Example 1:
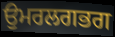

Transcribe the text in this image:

ਉੁਮਰਲਗਭਗ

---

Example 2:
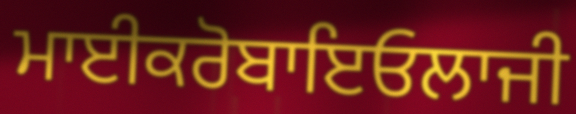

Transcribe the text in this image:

ਮਾਈਕਰੋਬਾਇਓਲਾਜੀ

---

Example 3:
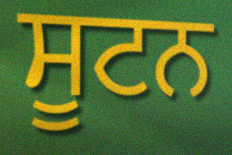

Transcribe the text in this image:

ਸੂਟਨ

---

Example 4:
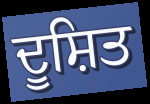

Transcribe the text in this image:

ਦੂਸ਼ਿਤ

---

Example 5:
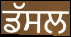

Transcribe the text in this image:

ਡੱਸਲ